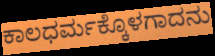
ಕಾಲಧರ್ಮಕ್ಕೊಳಗಾದನು